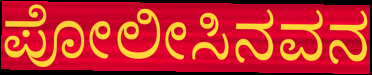
ಪೋಲೀಸಿನವನ